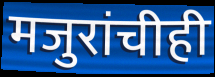
मजुरांचीही